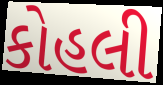
કોહલી